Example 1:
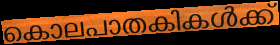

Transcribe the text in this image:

കൊലപാതകികൾക്ക്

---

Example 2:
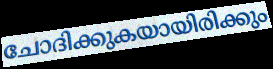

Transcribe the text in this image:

ചോദിക്കുകയായിരിക്കും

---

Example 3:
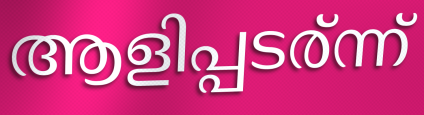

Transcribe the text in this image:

ആളിപ്പടര്ന്ന്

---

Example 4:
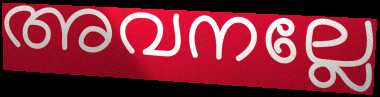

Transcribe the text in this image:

അവനല്ലേ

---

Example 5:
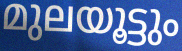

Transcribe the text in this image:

മുലയൂട്ടും